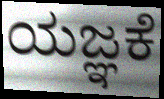
ಯಜ್ಞಕೆ